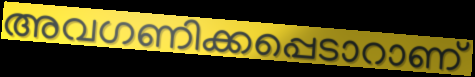
അവഗണിക്കപ്പെടാറാണ്